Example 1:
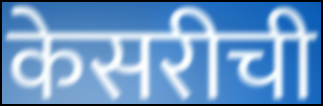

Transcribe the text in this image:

केसरीची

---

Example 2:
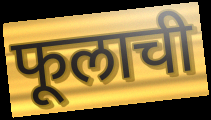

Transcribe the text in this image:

फूलाची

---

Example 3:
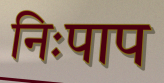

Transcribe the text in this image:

निःपाप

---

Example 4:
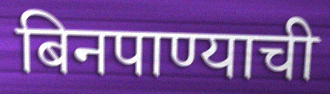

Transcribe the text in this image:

बिनपाण्याची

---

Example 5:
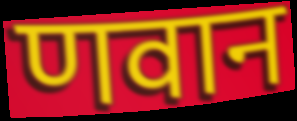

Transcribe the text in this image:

णवान